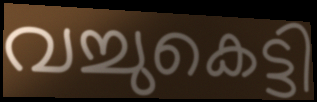
വച്ചുകെട്ടി